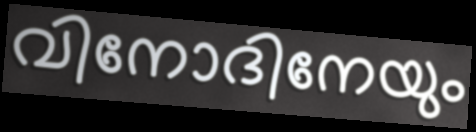
വിനോദിനേയും